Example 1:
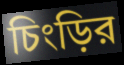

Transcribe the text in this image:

চিংড়ির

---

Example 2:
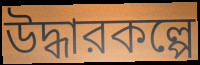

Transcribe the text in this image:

উদ্ধারকল্পে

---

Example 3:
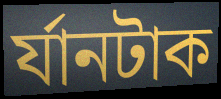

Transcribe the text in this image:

র্যানটাক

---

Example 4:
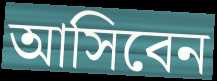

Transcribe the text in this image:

আসিবেন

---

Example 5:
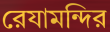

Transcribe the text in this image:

রেযামন্দির